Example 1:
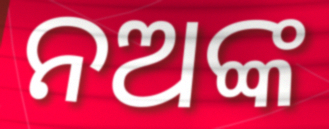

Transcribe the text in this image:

ନଅଙ୍କ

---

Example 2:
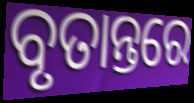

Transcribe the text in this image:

ବୃତାନ୍ତରେ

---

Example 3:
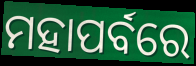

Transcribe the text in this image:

ମହାପର୍ବରେ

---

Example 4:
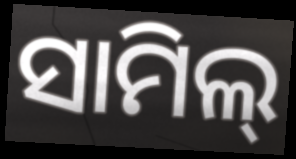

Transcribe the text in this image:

ସାମିଲ୍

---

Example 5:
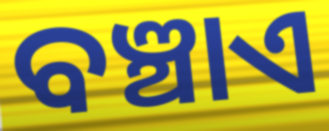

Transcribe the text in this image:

ବଞ୍ଚାଏ